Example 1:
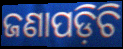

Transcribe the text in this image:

ଜଣାପଡ଼ିଚି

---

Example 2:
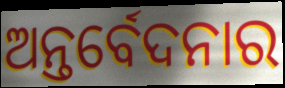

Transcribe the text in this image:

ଅନ୍ତର୍ବେଦନାର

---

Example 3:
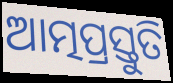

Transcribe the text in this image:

ଆତ୍ମପ୍ରସ୍ତୁତି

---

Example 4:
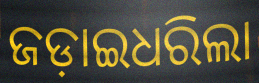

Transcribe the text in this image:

ଜଡ଼ାଇଧରିଲା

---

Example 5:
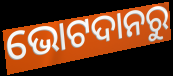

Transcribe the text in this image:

ଭୋଟଦାନରୁ